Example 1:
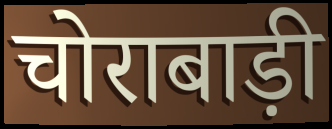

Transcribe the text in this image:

चोराबाड़ी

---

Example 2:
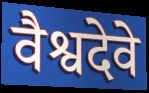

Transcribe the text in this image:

वैश्वदेवे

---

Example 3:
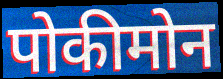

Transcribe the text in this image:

पोकीमोन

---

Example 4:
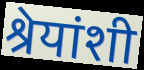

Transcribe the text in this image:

श्रेयांशी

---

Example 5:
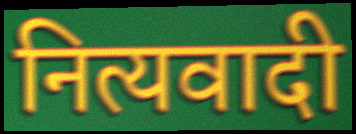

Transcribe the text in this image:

नित्यवादी